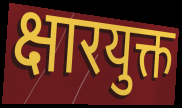
क्षारयुक्त